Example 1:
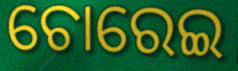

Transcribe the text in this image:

ଚୋରେଇ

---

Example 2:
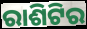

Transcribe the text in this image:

ରାଶିଟିର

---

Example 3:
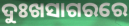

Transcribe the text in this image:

ଦୁଃଖସାଗରରେ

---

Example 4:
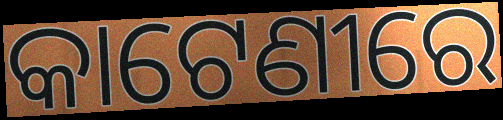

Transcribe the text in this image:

କାଟେଣୀରେ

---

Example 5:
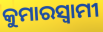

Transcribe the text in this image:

କୁମାରସ୍ୱାମୀ